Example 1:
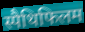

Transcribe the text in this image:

स्पैथिफिलम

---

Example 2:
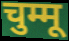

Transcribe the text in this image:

चुम्मू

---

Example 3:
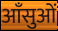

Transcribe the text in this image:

आँसुओं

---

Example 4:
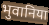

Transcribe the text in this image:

भुवानिया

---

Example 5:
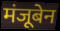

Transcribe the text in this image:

मंजूबेन